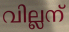
വില്ലന്